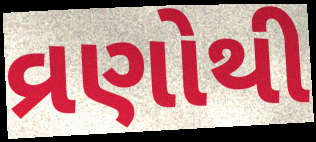
વ્રણોથી